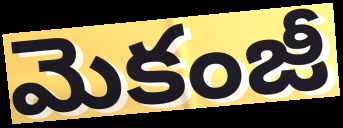
మెకంజీ